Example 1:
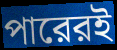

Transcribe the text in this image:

পারেরই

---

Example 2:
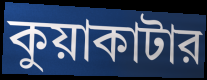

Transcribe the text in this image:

কুয়াকাটার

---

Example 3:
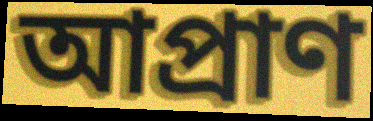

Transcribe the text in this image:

আপ্রাণ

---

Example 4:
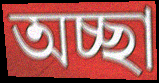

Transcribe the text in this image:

অচ্ছা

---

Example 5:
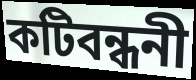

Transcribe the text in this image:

কটিবন্ধনী